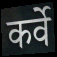
कर्वे